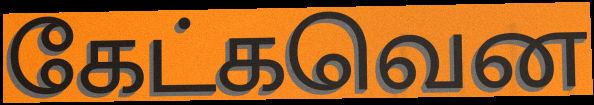
கேட்கவென